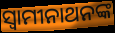
ସ୍ଵାମୀନାଥନଙ୍କ